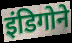
इंडिगोने